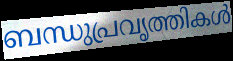
ബന്ധുപ്രവൃത്തികൾ